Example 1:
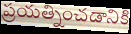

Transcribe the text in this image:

ప్రయత్నించడానికి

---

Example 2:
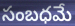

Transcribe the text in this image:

సంబధమే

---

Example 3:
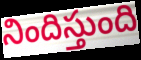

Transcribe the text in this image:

నిందిస్తుంది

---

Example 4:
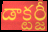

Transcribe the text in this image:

డాక్టర్జీ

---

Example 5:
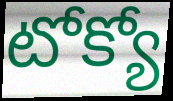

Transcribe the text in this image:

టోక్యో